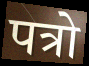
पत्रो